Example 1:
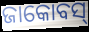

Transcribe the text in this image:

ଜାକୋବସ୍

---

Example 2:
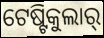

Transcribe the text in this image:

ଟେଷ୍ଟିକୁଲାର୍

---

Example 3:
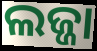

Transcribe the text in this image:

ଲଜ୍ଜା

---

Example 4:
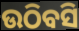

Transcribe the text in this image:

ଉଠିବସି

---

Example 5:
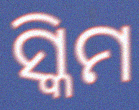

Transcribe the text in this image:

ସ୍କିମ